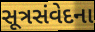
સૂત્રસંવેદના